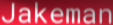
Jakeman